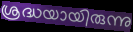
ശ്രദ്ധയായിരുന്നു